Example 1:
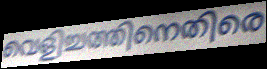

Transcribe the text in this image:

വെളിച്ചത്തിനെതിരെ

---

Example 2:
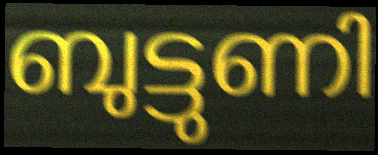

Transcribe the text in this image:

ബുട്ടുണി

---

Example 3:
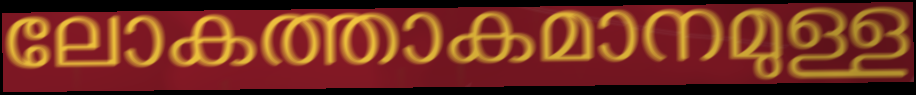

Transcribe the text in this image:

ലോകത്താകമാനമുള്ള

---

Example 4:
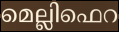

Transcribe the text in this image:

മെല്ലിഫെറ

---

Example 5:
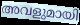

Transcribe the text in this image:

അവളുമായി